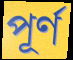
পূৰ্ণ